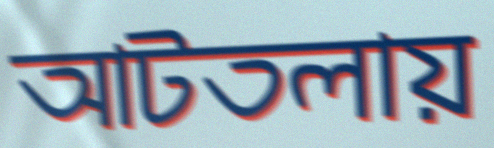
আটতলায়